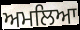
ਅਮਲਿਆ